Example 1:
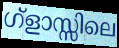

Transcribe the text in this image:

ഗ്ളാസ്സിലെ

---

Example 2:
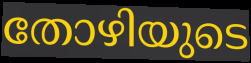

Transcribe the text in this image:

തോഴിയുടെ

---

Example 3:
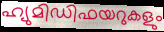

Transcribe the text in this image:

ഹ്യുമിഡിഫയറുകളും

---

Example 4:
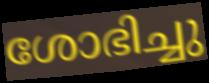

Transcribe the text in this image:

ശോഭിച്ചു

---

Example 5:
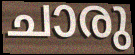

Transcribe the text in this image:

ചാരു